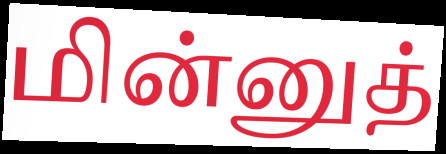
மின்னுத்